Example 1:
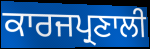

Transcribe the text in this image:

ਕਾਰਜਪ੍ਰਣਾਲੀ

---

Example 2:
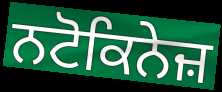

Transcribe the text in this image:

ਨਟੋਕਿਨੇਜ਼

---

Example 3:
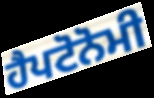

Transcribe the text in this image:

ਹੈਪਟੋਨੋਮੀ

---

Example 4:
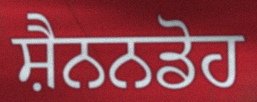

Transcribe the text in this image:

ਸ਼ੈਨਨਡੋਹ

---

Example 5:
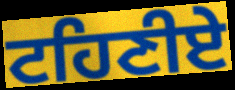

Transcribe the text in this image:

ਟਹਿਣੀਏ